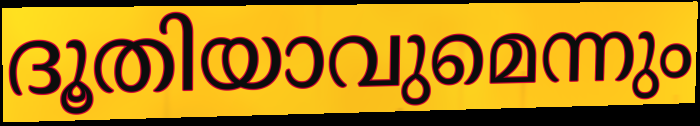
ദൂതിയാവുമെന്നും